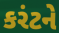
કરંટને